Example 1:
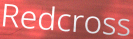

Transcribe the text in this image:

Redcross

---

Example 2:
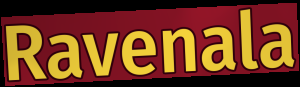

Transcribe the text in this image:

Ravenala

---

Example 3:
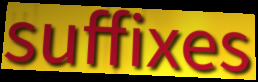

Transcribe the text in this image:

suffixes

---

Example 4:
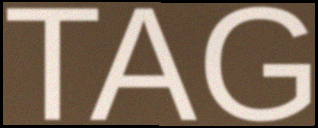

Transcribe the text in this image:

TAG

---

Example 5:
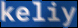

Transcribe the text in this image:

keliy